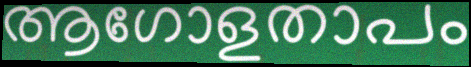
ആഗോളതാപം